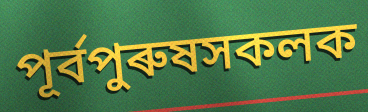
পূৰ্বপুৰুষসকলক